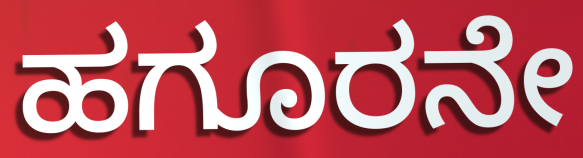
ಹಗೂರನೇ